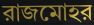
রাজমোহর